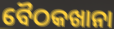
ବୈଠକଖାନା